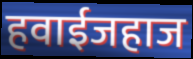
हवाईजहाज